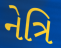
નેત્રિ